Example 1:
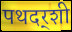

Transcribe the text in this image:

पथदर्शी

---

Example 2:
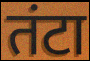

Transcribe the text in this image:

तंटा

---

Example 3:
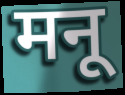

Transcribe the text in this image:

मनू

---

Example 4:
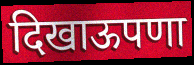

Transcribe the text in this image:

दिखाऊपणा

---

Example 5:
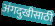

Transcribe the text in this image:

अंगदुखीसाठी